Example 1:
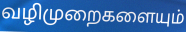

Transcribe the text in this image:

வழிமுறைகளையும்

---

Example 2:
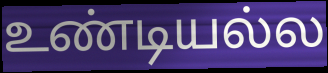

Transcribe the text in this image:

உண்டியல்ல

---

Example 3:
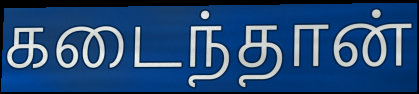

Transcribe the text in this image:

கடைந்தான்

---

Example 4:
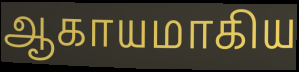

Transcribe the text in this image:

ஆகாயமாகிய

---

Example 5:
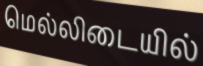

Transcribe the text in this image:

மெல்லிடையில்